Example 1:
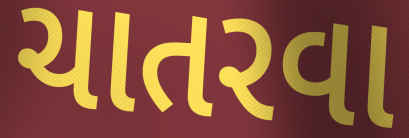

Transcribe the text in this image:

ચાતરવા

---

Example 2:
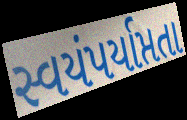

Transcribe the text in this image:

સ્વયંપર્યાપ્તતા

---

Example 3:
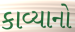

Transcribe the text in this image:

કાવ્યાનો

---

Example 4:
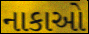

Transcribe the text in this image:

નાકાઓ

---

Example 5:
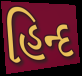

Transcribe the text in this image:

હિન્દ